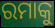
ରମାକୁ